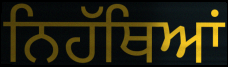
ਨਿਹੱਥਿਆਂ